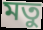
মতু